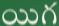
యిగ